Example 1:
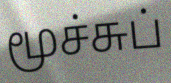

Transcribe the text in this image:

மூச்சுப்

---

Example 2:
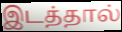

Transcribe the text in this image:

இடத்தால்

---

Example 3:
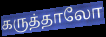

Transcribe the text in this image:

கருத்தாலோ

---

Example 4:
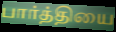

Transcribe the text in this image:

பார்த்தியை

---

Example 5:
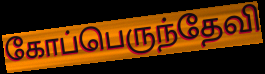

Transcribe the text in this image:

கோப்பெருந்தேவி